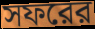
সফরের